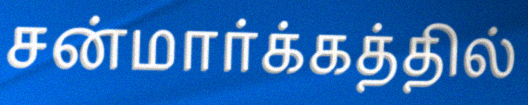
சன்மார்க்கத்தில்